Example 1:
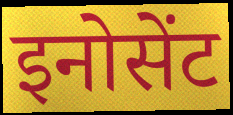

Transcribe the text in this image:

इनोसेंट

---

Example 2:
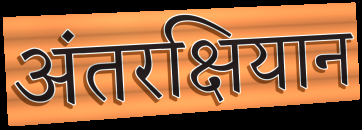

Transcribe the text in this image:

अंतरक्षियान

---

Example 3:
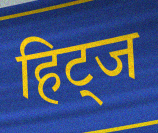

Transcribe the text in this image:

हिट्ज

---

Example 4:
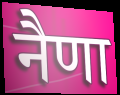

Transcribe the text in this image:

नैणा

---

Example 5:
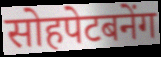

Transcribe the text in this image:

सोहपेटबनेंग